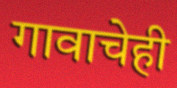
गावाचेही